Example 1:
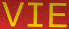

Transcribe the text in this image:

VIE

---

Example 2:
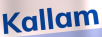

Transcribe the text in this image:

Kallam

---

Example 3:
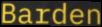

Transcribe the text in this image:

Barden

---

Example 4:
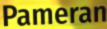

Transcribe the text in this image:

Pameran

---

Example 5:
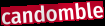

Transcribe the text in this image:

candomble